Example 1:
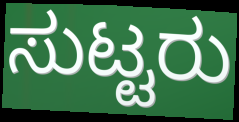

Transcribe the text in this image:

ಸುಟ್ಟರು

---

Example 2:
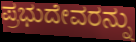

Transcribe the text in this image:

ಪ್ರಭುದೇವರನ್ನು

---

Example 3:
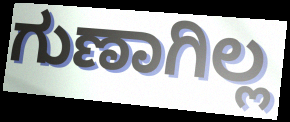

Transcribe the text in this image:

ಗುಣಾಗಿಲ್ಲ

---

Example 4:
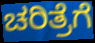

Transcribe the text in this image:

ಚರಿತ್ರೆಗೆ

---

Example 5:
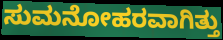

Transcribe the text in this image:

ಸುಮನೋಹರವಾಗಿತ್ತು